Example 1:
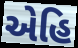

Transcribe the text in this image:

એહિ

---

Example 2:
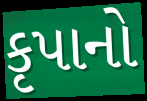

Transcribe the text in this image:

કૃપાનો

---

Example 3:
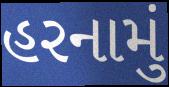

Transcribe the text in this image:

હરનામું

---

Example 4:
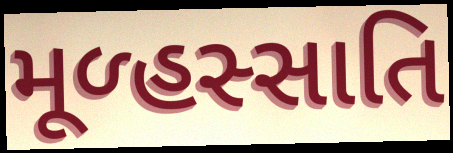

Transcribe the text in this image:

મૂળ્હસ્સાતિ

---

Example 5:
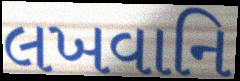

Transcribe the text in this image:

લખવાનિ